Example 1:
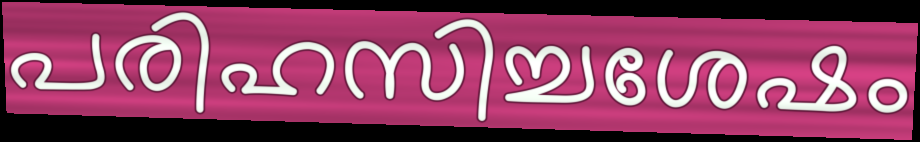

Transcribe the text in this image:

പരിഹസിച്ചശേഷം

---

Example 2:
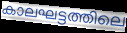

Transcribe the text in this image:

കാലഘട്ടത്തിലെ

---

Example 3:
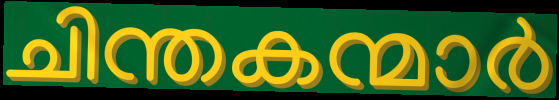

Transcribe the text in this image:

ചിന്തകന്മാർ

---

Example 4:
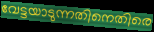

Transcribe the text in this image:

വേട്ടയാടുന്നതിനെതിരെ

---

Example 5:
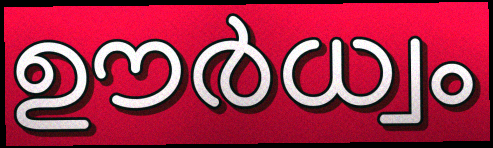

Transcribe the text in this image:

ഊർധ്വം